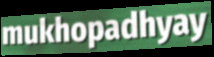
mukhopadhyay